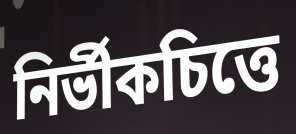
নির্ভীকচিত্তে